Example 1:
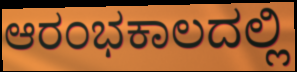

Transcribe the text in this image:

ಆರಂಭಕಾಲದಲ್ಲಿ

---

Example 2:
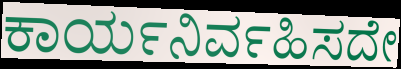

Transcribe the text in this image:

ಕಾರ್ಯನಿರ್ವಹಿಸದೇ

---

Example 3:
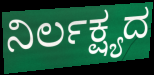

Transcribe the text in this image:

ನಿರ್ಲಕ್ಷ್ಯದ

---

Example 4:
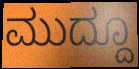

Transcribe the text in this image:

ಮುದ್ದೂ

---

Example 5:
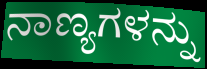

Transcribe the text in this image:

ನಾಣ್ಯಗಳನ್ನು